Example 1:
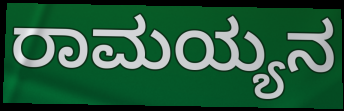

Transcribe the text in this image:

ರಾಮಯ್ಯನ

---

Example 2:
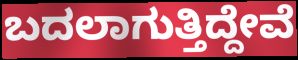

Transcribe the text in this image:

ಬದಲಾಗುತ್ತಿದ್ದೇವೆ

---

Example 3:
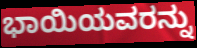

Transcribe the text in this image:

ಭಾಯಿಯವರನ್ನು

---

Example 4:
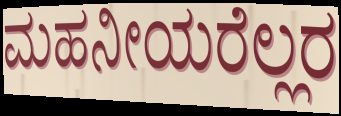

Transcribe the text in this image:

ಮಹನೀಯರೆಲ್ಲರ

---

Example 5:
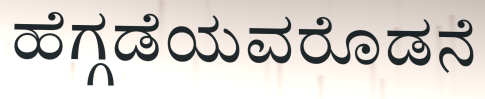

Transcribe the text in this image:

ಹೆಗ್ಗಡೆಯವರೊಡನೆ